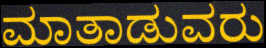
ಮಾತಾಡುವರು